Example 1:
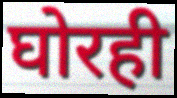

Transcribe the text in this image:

घोरही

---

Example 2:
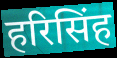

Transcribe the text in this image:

हरिसिंह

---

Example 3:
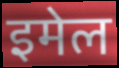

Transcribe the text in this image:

इमेल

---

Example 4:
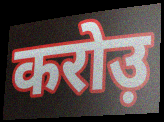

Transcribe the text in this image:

करोउ़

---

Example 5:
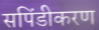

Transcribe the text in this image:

सपिंडीकरण